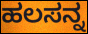
ಹಲಸನ್ನ